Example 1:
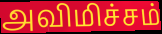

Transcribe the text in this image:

அவிமிச்சம்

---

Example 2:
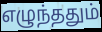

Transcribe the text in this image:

எழுந்ததும்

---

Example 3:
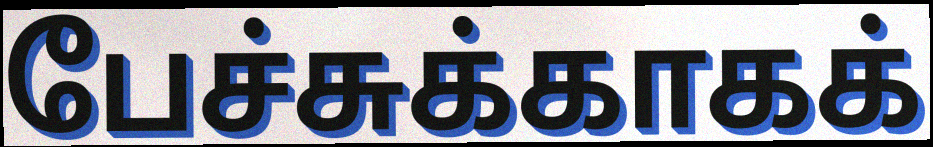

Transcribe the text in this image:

பேச்சுக்காகக்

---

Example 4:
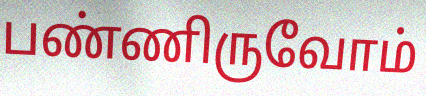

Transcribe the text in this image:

பண்ணிருவோம்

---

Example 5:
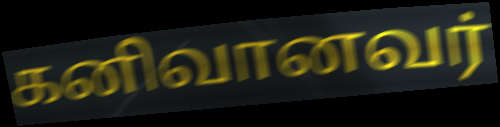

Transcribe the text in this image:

கனிவானவர்